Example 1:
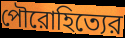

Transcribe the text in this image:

পৌরোহিত্যের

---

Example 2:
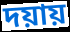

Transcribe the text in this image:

দয়ায়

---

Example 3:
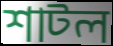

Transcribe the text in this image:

শাট্ল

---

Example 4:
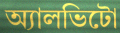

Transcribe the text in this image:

অ্যালভিটো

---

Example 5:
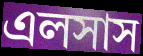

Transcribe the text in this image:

এলসাস